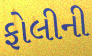
ફોલીની